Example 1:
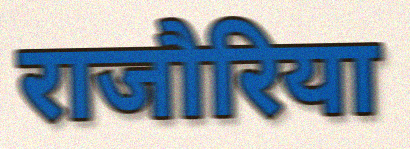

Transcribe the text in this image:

राजौरिया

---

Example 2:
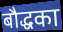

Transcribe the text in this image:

बौद्धका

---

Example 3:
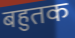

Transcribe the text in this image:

बहुतक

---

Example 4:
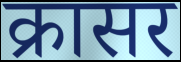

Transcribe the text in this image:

क्रासर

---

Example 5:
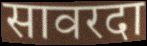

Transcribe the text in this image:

सावरदा